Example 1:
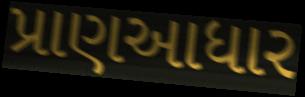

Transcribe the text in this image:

પ્રાણઆધાર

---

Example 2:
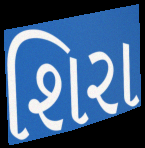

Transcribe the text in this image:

શિરા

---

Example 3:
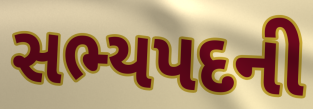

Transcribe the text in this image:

સભ્યપદની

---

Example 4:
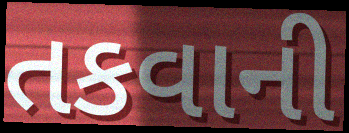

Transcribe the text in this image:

તકવાની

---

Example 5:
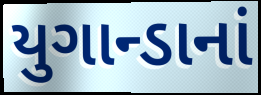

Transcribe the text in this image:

યુગાન્ડાનાં